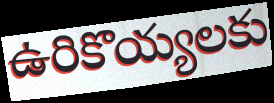
ఉరికొయ్యలకు